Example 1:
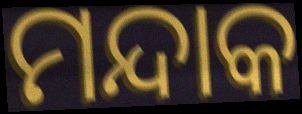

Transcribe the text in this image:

ମନ୍ଦାକ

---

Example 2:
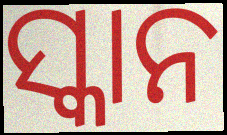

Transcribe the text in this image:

ସ୍କାନ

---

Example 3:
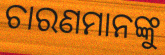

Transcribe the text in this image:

ଚାରଣମାନଙ୍କୁ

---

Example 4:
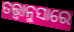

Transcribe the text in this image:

ତତ୍ତ୍ୱାନୁସାରେ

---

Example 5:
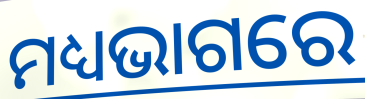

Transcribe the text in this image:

ମଧ୍ୟଭାଗରେ